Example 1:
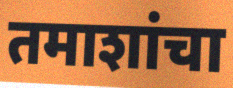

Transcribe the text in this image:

तमाशांचा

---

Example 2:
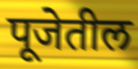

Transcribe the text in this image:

पूजेतील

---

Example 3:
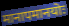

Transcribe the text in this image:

मानापमानयोः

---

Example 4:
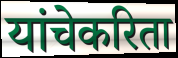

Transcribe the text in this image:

यांचेकरिता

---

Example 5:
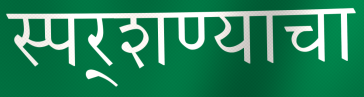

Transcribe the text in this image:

स्पर्शण्याचा